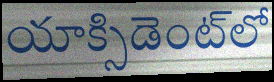
యాక్సిడెంట్‌లో